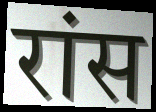
रांस